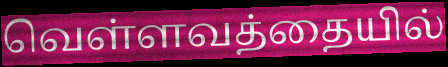
வெள்ளவத்தையில்